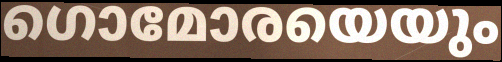
ഗൊമോരയെയും